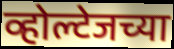
व्होल्टेजच्या